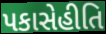
પકાસેહીતિ